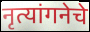
नृत्यांगनेचे